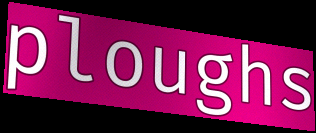
ploughs